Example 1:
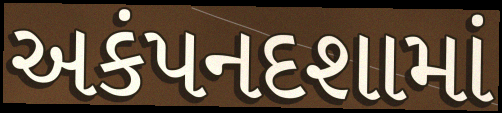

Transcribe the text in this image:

અકંપનદશામાં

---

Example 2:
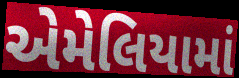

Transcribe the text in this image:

એમેલિયામાં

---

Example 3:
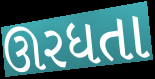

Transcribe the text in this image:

ઊરધતા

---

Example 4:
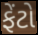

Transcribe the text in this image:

ફેંટો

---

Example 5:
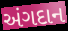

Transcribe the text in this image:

અંગદાન